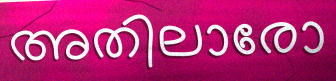
അതിലാരോ